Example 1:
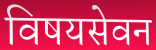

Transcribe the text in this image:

विषयसेवन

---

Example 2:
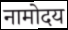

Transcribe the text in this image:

नामोदय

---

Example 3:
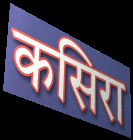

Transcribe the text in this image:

कसिरा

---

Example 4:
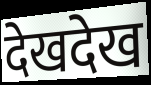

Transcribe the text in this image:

देखदेख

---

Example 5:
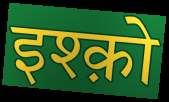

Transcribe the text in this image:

इश्क़ो